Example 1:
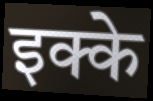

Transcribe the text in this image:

इक्के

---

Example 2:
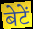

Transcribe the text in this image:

बेटें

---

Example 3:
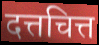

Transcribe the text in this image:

दत्तचित्त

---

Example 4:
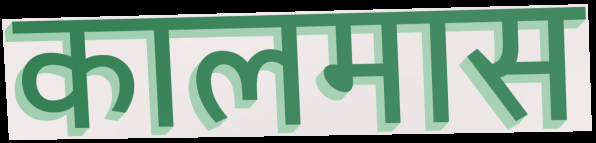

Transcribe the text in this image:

कालमास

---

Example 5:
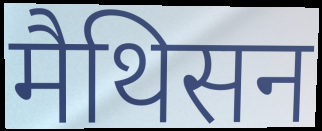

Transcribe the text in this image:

मैथिसन